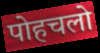
पोहचलो